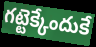
గట్టెక్కేందుకే